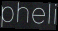
pheli